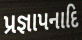
પ્રજ્ઞાપનાદિ